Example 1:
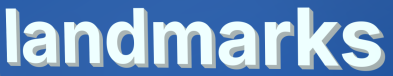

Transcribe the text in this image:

landmarks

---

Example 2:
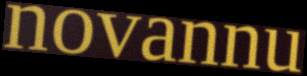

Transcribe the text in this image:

novannu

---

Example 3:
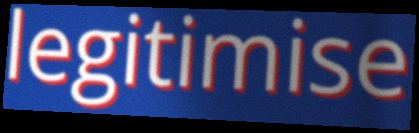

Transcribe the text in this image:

legitimise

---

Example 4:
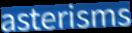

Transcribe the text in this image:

asterisms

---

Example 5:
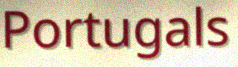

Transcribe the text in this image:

Portugals